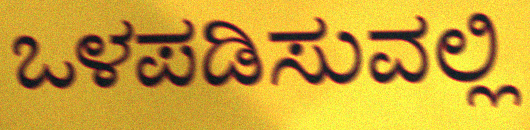
ಒಳಪಡಿಸುವಲ್ಲಿ